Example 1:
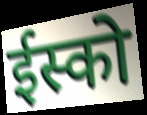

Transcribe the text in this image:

ईस्को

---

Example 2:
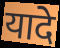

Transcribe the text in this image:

यादे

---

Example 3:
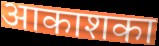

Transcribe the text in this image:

आकाशका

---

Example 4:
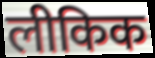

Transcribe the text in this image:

लीकिक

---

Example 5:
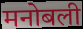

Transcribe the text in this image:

मनोबली